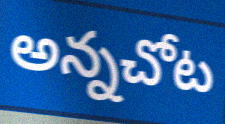
అన్నచోట